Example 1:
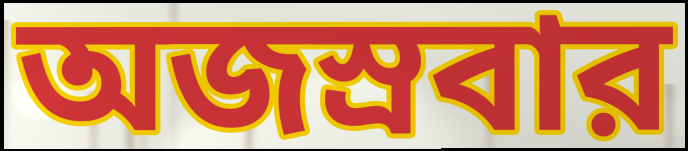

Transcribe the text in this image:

অজস্রবার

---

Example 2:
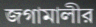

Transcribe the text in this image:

জগামালীর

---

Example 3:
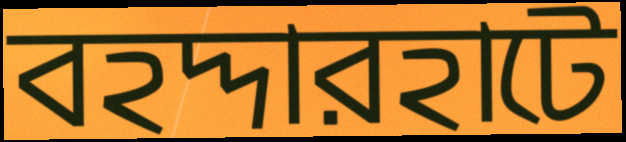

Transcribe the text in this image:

বহদ্দারহাটে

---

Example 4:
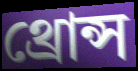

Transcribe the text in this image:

থ্রোন্স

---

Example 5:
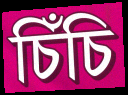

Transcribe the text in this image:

চিঁচি